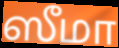
ஸீமா